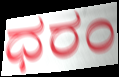
ಧರಂ